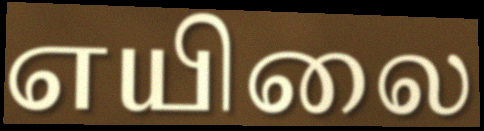
எயிலை